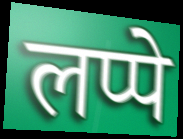
लप्पे